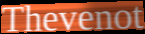
Thevenot